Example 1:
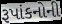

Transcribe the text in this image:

રૂપાંકનોની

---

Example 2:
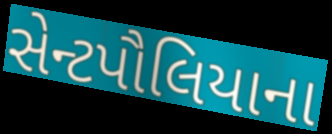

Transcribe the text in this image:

સેન્ટપૌલિયાના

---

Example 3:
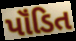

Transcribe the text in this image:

પૉંડિત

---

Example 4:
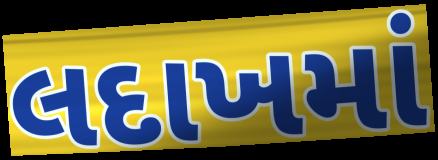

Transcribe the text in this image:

લદાખમાં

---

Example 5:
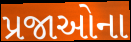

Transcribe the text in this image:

પ્રજાઓના